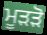
ਮੂੜੜੋ